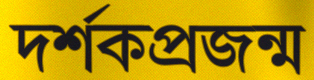
দর্শকপ্রজন্ম